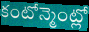
కంటోన్మెంట్లో